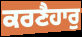
ਕਰਣੈਹਾਰੁ